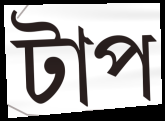
টাপ